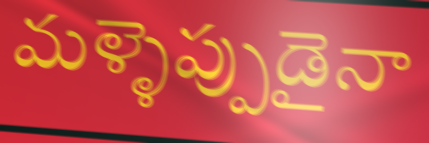
మళ్ళెప్పుడైనా